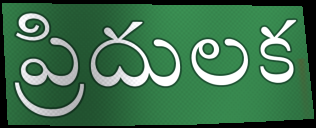
ప్రిదులక